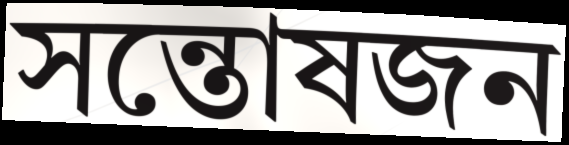
সন্তোষজন